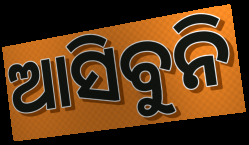
ଆସିବୁନି